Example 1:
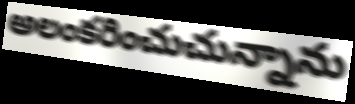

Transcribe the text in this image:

అలంకరించుచున్నాను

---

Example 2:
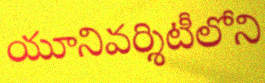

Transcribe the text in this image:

యూనివర్శిటీలోని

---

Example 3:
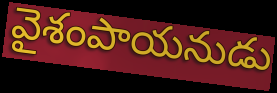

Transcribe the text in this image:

వైశంపాయనుడు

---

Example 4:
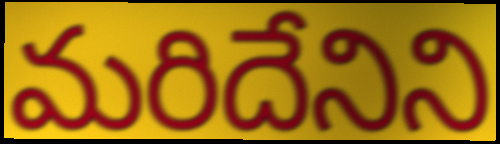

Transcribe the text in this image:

మరిదేనిని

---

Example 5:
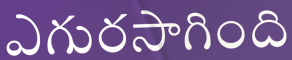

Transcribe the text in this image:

ఎగురసాగింది